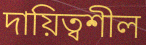
দায়িত্বশীল